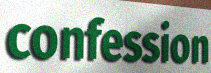
confession